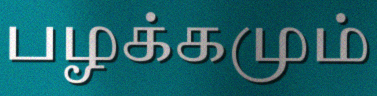
பழக்கமும்